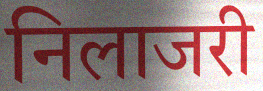
निलाजरी